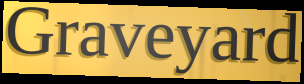
Graveyard